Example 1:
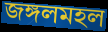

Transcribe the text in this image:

জঙ্গলমহল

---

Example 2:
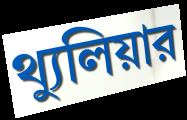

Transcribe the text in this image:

থ্যুলিয়ার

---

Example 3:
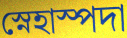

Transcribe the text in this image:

স্নেহাস্পদা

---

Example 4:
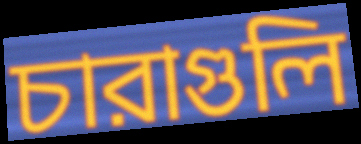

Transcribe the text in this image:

চারাগুলি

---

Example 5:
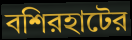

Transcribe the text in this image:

বশিরহাটের